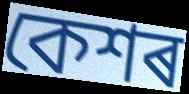
কেশৰ